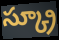
స్క్రూ